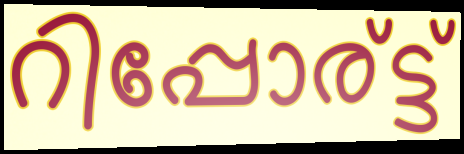
റിപ്പോര്ട്ട്